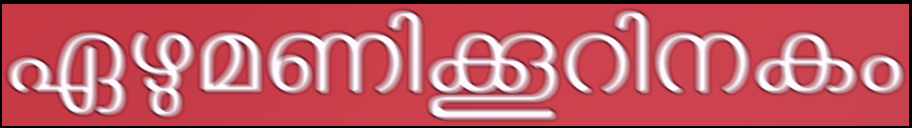
ഏഴുമണിക്കൂറിനകം